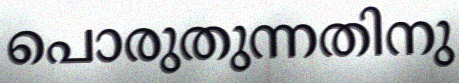
പൊരുതുന്നതിനു